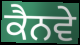
ਕੈਨਵੇ